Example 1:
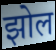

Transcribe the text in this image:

झोल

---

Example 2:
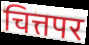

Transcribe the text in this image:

चित्तपर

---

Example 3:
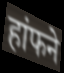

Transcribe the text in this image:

हांफने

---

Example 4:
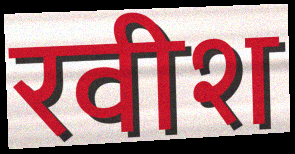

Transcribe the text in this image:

रवीश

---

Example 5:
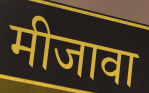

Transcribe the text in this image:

मीजावा